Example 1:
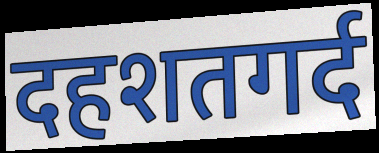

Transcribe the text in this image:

दहशतगर्द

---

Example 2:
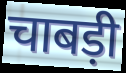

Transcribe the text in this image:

चाबड़ी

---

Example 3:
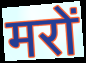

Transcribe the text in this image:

मरों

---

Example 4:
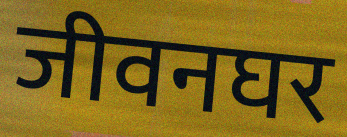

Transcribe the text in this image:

जीवनघर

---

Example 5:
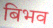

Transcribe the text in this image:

बिभव